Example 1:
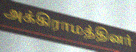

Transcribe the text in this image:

அக்கிராமத்தினர்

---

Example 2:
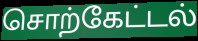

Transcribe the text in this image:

சொற்கேட்டல்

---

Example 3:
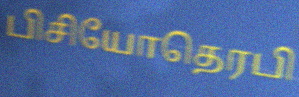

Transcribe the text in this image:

பிசியோதெரபி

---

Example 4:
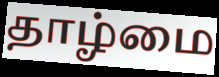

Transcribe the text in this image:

தாழ்மை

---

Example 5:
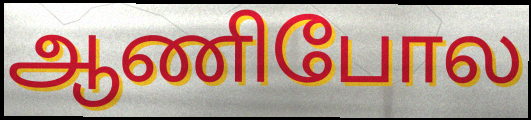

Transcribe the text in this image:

ஆணிபோல